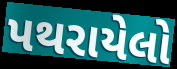
પથરાયેલો